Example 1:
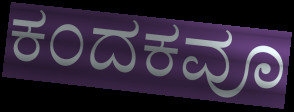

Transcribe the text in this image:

ಕಂದಕವೂ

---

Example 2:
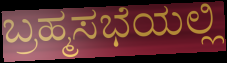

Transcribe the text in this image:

ಬ್ರಹ್ಮಸಭೆಯಲ್ಲಿ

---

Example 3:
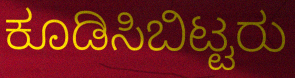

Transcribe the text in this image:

ಕೂಡಿಸಿಬಿಟ್ಟರು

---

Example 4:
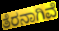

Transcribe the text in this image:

ತೆರನಾಗಿವೆ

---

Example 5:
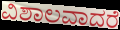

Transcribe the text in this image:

ವಿಶಾಲವಾದರೆ